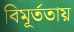
বিমূর্ততায়